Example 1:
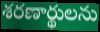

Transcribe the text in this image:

శరణార్థులను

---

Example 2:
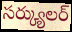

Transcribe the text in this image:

సర్క్యులర్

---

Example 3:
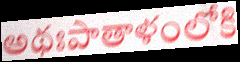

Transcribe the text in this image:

అథఃపాతాళంలోకి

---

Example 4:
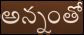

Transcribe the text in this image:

అన్నంతో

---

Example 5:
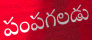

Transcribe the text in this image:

పంపగలడు